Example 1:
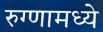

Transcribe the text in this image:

रुग्णामध्ये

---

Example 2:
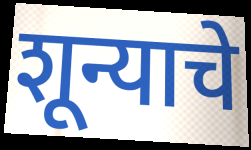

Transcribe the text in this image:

शून्याचे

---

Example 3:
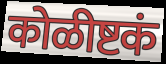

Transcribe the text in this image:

कोळीष्टकं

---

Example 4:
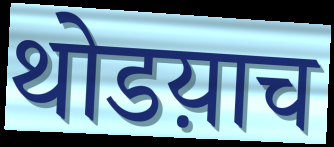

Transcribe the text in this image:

थोडय़ाच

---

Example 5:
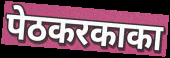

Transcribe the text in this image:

पेठकरकाका